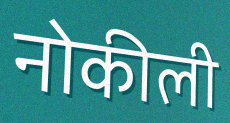
नोकीली